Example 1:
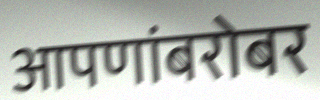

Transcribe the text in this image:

आपणांबरोबर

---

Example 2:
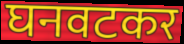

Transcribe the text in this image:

घनवटकर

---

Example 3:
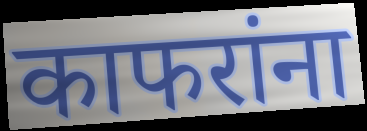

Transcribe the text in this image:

काफरांना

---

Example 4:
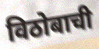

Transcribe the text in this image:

विठोबाची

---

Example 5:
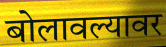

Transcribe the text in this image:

बोलावल्यावर